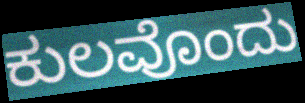
ಕುಲವೊಂದು